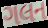
ગલન